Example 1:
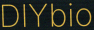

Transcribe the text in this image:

DIYbio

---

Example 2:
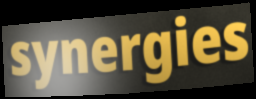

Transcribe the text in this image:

synergies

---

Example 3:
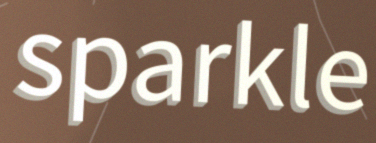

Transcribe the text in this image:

sparkle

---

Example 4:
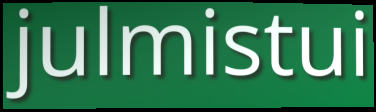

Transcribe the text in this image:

julmistui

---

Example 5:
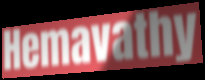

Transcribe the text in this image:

Hemavathy